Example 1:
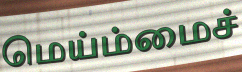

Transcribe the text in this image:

மெய்ம்மைச்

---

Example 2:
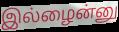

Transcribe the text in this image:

இல்ழைன்னு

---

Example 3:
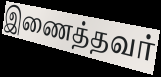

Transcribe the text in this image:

இணைத்தவர்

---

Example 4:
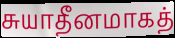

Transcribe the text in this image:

சுயாதீனமாகத்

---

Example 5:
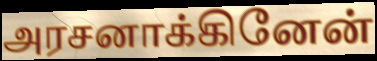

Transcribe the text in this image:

அரசனாக்கினேன்